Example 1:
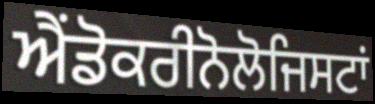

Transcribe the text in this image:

ਐਂਡੋਕਰੀਨੋਲੋਜਿਸਟਾਂ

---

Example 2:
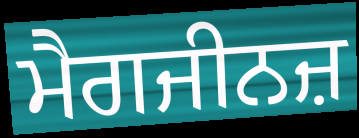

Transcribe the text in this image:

ਮੈਗਜੀਨਜ਼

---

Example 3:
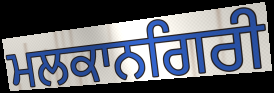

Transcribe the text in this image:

ਮਲਕਾਨਗਿਰੀ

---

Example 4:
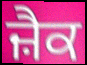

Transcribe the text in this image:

ਜ਼ੈਕ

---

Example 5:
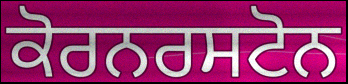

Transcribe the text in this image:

ਕੋਰਨਰਸਟੋਨ